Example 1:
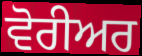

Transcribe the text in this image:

ਵੋਰੀਅਰ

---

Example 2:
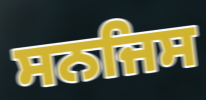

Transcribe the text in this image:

ਸਨਜਿਸ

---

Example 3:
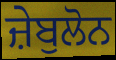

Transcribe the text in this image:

ਜ਼ੇਬੁਲੋਨ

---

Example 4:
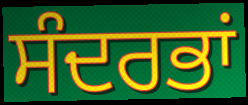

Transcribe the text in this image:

ਸੰਦਰਭਾਂ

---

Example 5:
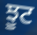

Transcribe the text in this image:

ਝੂਟ